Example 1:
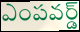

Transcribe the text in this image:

ఎంపవర్డ్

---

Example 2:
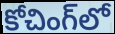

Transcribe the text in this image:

కోచింగ్‌లో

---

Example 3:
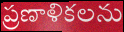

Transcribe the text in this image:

ప్రణాళికలను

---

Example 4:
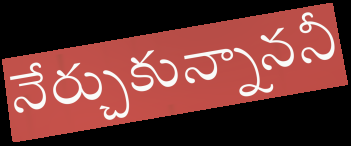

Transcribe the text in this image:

నేర్చుకున్నాననీ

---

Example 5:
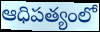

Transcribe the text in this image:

ఆధిపత్యంలో